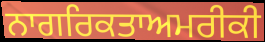
ਨਾਗਰਿਕਤਾਅਮਰੀਕੀ